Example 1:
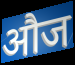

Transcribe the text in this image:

औज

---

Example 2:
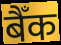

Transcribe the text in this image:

बैँक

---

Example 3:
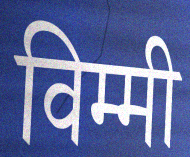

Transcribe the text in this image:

विम्मी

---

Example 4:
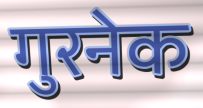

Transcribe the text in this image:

गुरनेक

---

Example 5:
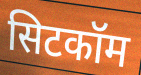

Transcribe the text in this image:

सिटकॉम